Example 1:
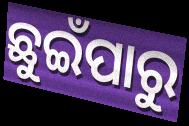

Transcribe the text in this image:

ଛୁଇଁପାରୁ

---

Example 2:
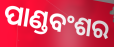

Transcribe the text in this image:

ପାଣ୍ଡବଂଶର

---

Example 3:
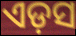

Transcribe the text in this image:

ଏଡ଼ସ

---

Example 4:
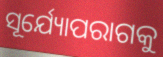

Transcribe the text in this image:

ସୂର୍ଯ୍ୟୋପରାଗକୁ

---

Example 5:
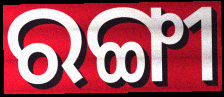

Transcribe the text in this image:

ରଙ୍ଗୀ